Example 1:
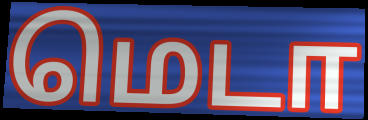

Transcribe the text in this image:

மெடா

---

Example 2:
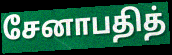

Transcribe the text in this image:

சேனாபதித்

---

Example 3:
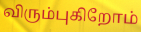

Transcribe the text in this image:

விரும்புகிறோம்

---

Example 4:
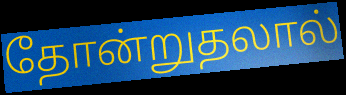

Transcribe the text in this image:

தோன்றுதலால்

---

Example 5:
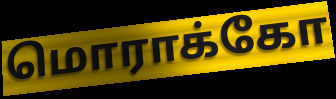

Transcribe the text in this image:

மொராக்கோ